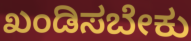
ಖಂಡಿಸಬೇಕು